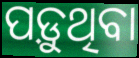
ପଡ଼ୁଥିବା